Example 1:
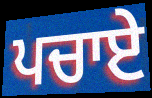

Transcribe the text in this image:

ਪਚਾਏ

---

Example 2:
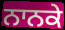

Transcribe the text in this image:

ਨਾਨਕੇ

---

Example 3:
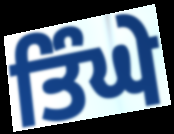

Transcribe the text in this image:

ਤਿੰਘੇ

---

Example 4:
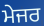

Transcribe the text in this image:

ਮੇਜਰ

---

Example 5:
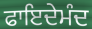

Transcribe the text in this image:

ਫਾਇਦੇਮੰਦ